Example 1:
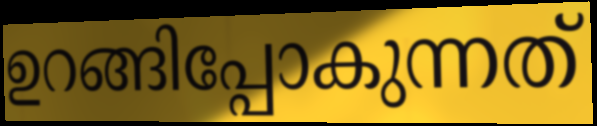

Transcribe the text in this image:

ഉറങ്ങിപ്പോകുന്നത്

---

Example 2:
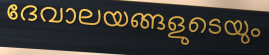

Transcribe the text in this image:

ദേവാലയങ്ങളുടെയും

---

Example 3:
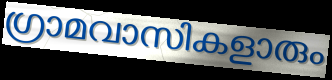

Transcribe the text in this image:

ഗ്രാമവാസികളാരും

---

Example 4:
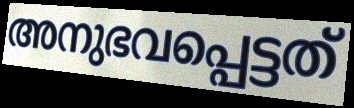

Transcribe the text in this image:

അനുഭവപ്പെട്ടത്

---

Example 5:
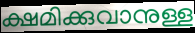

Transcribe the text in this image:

ക്ഷമിക്കുവാനുള്ള